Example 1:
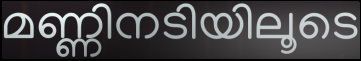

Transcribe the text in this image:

മണ്ണിനടിയിലൂടെ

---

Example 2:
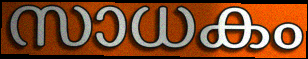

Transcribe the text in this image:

സാധകം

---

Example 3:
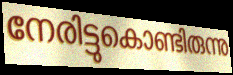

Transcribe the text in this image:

നേരിട്ടുകൊണ്ടിരുന്നു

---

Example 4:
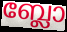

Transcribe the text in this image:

ബ്ലോ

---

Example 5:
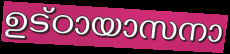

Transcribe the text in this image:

ഉട്ഠായാസനാ